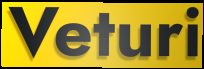
Veturi